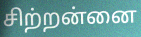
சிற்றன்னை